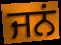
ਜਨਂ